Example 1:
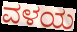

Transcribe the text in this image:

ವಳಯ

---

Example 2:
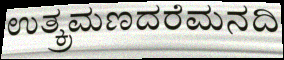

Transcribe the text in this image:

ಉತ್ಕ್ರಮಣದರೆಮನದಿ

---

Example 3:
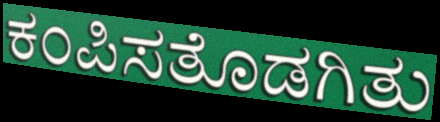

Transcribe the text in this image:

ಕಂಪಿಸತೊಡಗಿತು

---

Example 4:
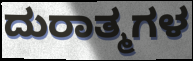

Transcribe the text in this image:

ದುರಾತ್ಮಗಳ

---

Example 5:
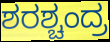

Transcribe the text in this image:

ಶರಶ್ಚಂದ್ರ